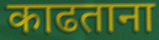
काढताना